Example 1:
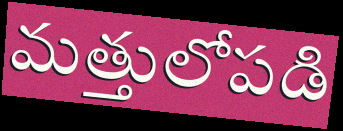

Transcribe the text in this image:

మత్తులోపడి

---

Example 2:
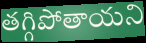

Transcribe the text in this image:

తగ్గిపోతాయని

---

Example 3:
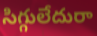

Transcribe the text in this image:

సిగ్గులేదురా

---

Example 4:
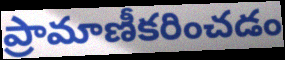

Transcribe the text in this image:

ప్రామాణీకరించడం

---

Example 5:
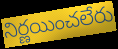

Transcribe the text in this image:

నిర్ణయించలేరు